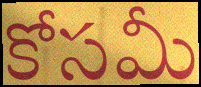
కోసమీ